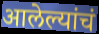
आलेल्यांचं